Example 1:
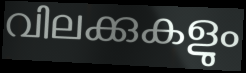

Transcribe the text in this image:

വിലക്കുകളും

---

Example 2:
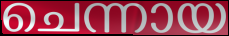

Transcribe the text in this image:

ചെന്നായ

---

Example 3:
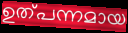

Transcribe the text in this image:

ഉത്പന്നമായ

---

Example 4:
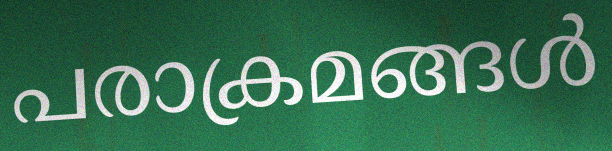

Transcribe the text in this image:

പരാക്രമങ്ങൾ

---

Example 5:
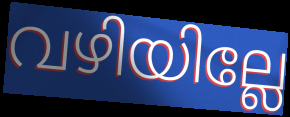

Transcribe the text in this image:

വഴിയില്ലേ